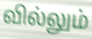
வில்லும்